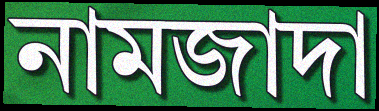
নামজাদা